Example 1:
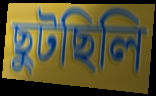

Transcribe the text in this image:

ছুটছিলি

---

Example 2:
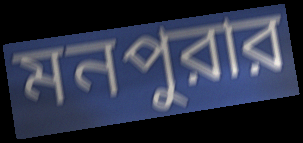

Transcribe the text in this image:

মনপুরার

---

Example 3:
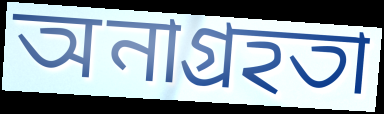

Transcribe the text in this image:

অনাগ্রহতা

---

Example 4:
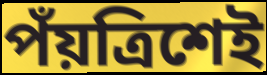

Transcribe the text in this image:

পঁয়ত্রিশেই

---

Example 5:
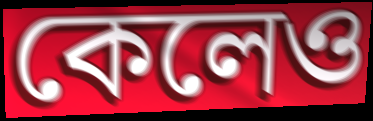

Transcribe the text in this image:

কেলেও